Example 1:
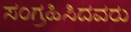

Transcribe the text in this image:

ಸಂಗ್ರಹಿಸಿದವರು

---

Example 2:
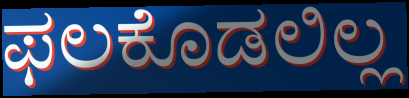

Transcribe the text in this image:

ಫಲಕೊಡಲಿಲ್ಲ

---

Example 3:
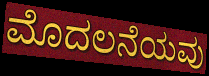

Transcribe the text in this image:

ಮೊದಲನೆಯವು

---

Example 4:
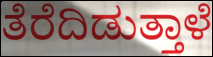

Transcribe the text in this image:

ತೆರೆದಿಡುತ್ತಾಳೆ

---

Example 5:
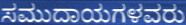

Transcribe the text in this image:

ಸಮುದಾಯಗಳವರು